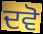
ਦਵੋ